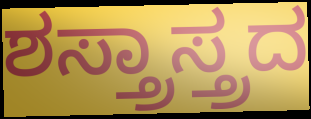
ಶಸ್ತ್ರಾಸ್ತ್ರದ